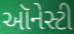
ઑનેસ્ટી